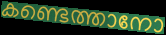
കണ്ടെത്താനോ